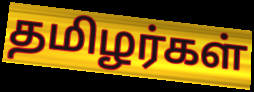
தமிழர்கள்